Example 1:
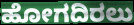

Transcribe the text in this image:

ಹೋಗದಿರಲು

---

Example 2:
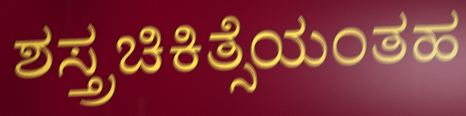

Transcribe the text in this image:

ಶಸ್ತ್ರಚಿಕಿತ್ಸೆಯಂತಹ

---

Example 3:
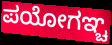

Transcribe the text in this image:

ಪಯೋಗಞ್ಚ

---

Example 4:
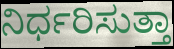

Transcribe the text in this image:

ನಿರ್ಧರಿಸುತ್ತಾ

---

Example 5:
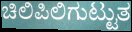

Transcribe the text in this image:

ಚಿಲಿಪಿಲಿಗುಟ್ಟುತ